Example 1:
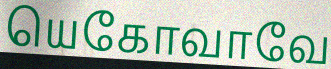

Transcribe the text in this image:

யெகோவாவே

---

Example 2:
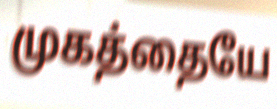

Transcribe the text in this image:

முகத்தையே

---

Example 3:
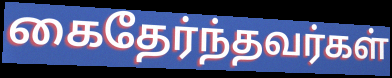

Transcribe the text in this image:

கைதேர்ந்தவர்கள்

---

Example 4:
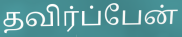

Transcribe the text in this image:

தவிர்ப்பேன்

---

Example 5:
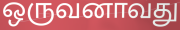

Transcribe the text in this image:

ஒருவனாவது